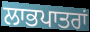
ਲਾਭਪਾਤਰਾਂ